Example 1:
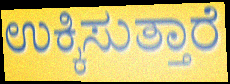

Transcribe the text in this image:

ಉಕ್ಕಿಸುತ್ತಾರೆ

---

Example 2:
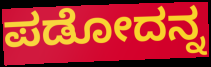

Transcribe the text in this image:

ಪಡೋದನ್ನ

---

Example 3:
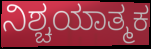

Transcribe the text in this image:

ನಿಶ್ಚಯಾತ್ಮಕ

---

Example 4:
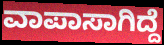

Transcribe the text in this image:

ವಾಪಾಸಾಗಿದ್ದೆ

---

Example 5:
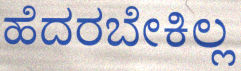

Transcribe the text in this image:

ಹೆದರಬೇಕಿಲ್ಲ